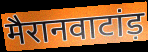
मैरानवाटांड़